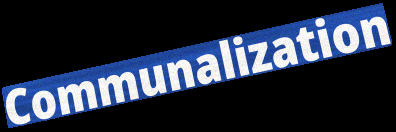
Communalization